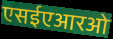
एसईएआरओ